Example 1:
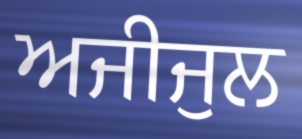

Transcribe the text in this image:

ਅਜੀਜੁਲ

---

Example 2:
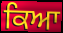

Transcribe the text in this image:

ਕਿਆ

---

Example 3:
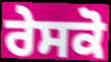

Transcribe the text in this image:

ਰੇਸਕੋ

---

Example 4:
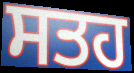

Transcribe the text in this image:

ਸਤਹ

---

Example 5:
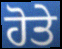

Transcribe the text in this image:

ਹੋਤੇ